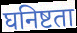
घनिष्टता